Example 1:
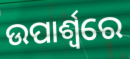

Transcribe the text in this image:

ଉପାର୍ଶ୍ଵରେ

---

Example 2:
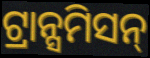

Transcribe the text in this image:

ଟ୍ରାନ୍ସମିସନ୍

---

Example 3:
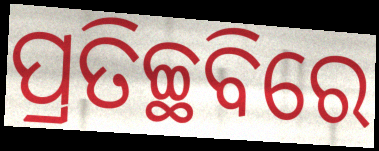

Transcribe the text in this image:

ପ୍ରତିଚ୍ଛବିରେ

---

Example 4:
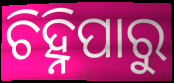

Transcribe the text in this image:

ଚିହ୍ନିପାରୁ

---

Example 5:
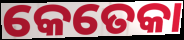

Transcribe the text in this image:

କେତେକା